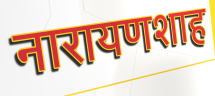
नारायणशाह